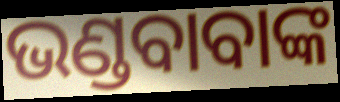
ଭଣ୍ଡବାବାଙ୍କ